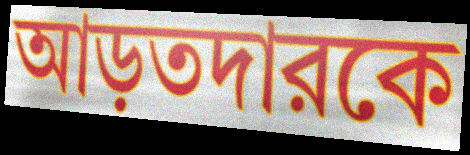
আড়তদারকে